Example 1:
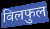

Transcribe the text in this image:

विलफुल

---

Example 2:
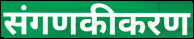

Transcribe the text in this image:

संगणकीकरण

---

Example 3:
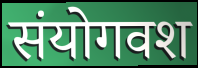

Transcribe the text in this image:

संयोगवश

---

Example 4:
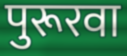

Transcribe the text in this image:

पुरूरवा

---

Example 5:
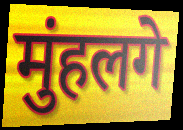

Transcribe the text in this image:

मुंहलगे